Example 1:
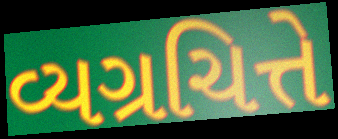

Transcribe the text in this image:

વ્યગ્રચિત્તે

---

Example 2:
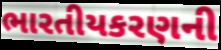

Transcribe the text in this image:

ભારતીયકરણની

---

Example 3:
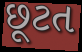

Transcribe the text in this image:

છૂટત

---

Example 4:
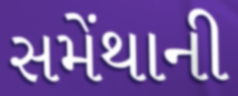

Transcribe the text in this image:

સમેંથાની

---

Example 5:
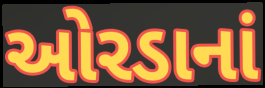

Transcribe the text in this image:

ઓરડાનાં